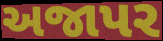
અજાપર